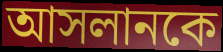
আসলানকে